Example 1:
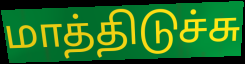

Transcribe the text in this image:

மாத்திடுச்சு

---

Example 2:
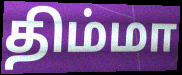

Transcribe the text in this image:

திம்மா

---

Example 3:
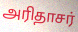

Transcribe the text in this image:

அரிதாசர்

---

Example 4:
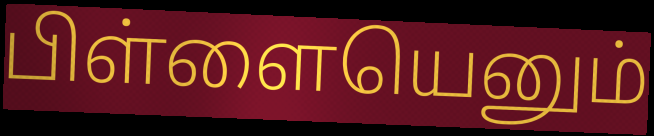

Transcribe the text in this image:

பிள்ளையெனும்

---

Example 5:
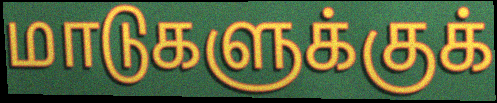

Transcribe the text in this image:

மாடுகளுக்குக்